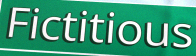
Fictitious